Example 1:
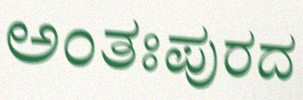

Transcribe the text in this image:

ಅಂತಃಪುರದ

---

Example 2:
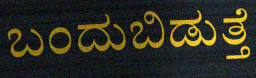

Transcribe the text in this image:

ಬಂದುಬಿಡುತ್ತೆ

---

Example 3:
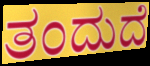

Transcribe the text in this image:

ತಂದುದೆ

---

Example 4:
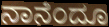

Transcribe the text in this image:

ನಾನೆಂದೂ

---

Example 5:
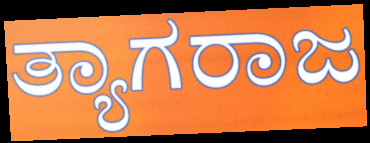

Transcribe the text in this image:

ತ್ಯಾಗರಾಜ